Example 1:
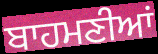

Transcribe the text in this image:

ਬਾਹਮਣੀਆਂ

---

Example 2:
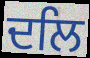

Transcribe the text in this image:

ਦਲਿ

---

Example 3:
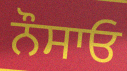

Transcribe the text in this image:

ਨੌਸਾਓ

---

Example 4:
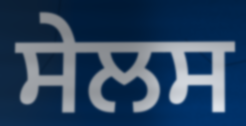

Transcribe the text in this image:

ਸੇਲਸ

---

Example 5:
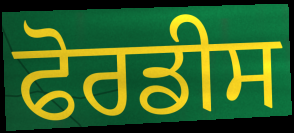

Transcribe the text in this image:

ਫੋਰਡੀਸ